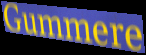
Gummere